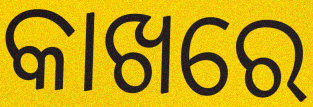
କାଖରେ